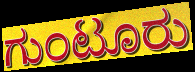
ಗುಂಟೂರು